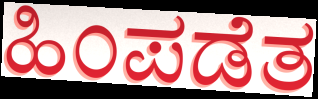
ಹಿಂಪಡೆತ